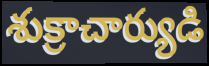
శుక్రాచార్యుడి